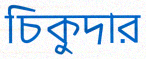
চিকুদার